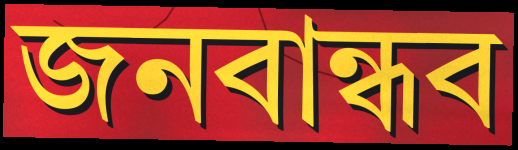
জনবান্ধব